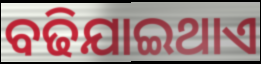
ବଢିଯାଇଥାଏ